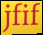
jfif